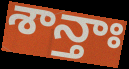
శాన్తాః